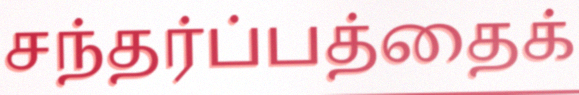
சந்தர்ப்பத்தைக்